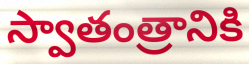
స్వాతంత్రానికి